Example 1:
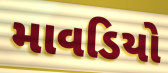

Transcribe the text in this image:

માવડિયો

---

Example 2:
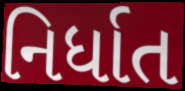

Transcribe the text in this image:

નિર્ધાત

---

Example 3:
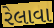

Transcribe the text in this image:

રેલાવા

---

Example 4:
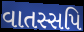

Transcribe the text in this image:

વાતસ્સપિ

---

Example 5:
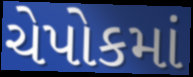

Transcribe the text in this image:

ચેપોકમાં